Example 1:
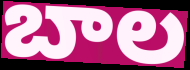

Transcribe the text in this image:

బాల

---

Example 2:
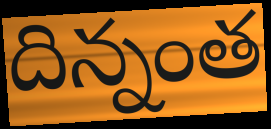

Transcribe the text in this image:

దిన్నంత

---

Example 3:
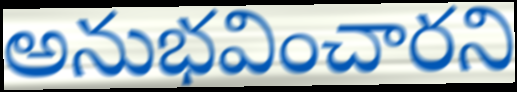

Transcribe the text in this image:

అనుభవించారని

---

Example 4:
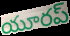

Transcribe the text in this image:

యూరప్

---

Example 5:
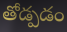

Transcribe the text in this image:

తోడ్పడం